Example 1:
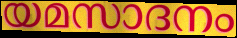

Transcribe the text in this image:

യമസാദനം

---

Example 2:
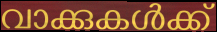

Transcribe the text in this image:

വാക്കുകൾക്ക്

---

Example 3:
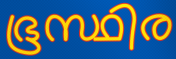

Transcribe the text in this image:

ഭൂസ്ഥിര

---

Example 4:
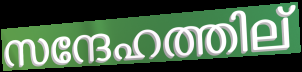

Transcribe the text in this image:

സന്ദേഹത്തില്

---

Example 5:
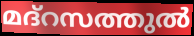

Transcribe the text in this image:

മദ്റസത്തുൽ